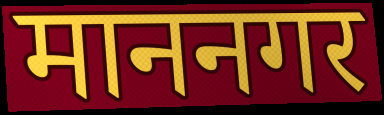
माननगर